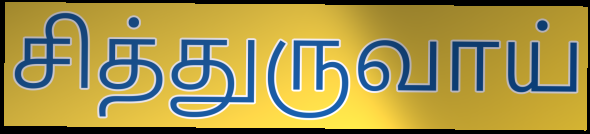
சித்துருவாய்